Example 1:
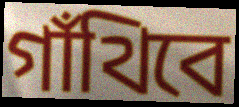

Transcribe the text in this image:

গাঁথিবে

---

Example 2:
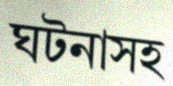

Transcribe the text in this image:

ঘটনাসহ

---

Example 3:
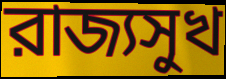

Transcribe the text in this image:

রাজ্যসুখ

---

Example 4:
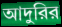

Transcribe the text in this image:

আদুরির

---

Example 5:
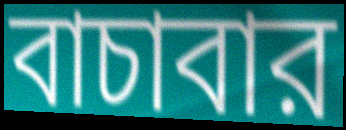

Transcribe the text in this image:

বাচাবার